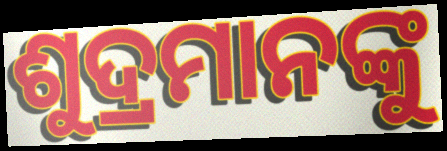
ଶୁଦ୍ରମାନଙ୍କୁ